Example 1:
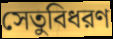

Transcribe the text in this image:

সেতুবিধরণ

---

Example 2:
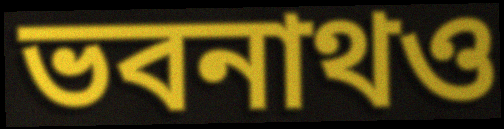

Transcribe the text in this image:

ভবনাথও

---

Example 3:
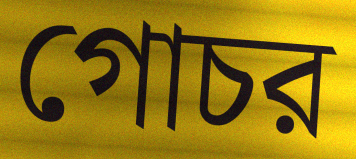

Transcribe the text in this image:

গোচর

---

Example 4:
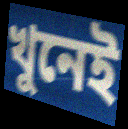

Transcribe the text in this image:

খুনেই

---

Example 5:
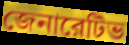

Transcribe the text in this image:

জেনারেটিভ